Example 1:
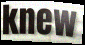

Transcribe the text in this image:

knew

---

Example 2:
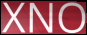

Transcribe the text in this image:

XNO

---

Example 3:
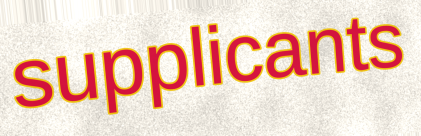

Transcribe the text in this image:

supplicants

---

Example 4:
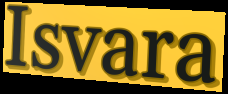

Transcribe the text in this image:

Isvara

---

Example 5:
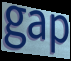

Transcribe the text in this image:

gap